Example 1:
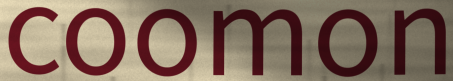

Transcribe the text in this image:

coomon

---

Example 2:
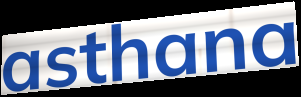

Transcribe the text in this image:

asthana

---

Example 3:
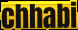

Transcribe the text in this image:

chhabi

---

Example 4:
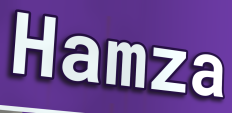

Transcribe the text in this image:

Hamza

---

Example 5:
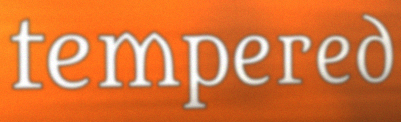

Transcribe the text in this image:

tempered